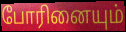
போரினையும்